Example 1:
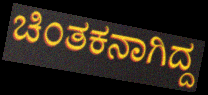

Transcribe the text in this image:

ಚಿಂತಕನಾಗಿದ್ದ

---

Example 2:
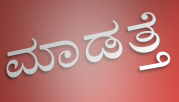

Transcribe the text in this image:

ಮಾಡತ್ತೆ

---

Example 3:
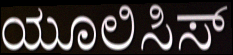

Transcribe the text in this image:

ಯೂಲಿಸಿಸ್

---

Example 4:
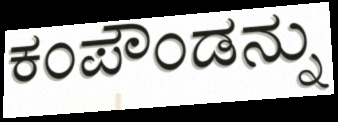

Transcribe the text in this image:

ಕಂಪೌಂಡನ್ನು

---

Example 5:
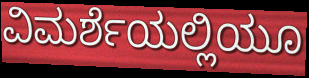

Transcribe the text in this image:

ವಿಮರ್ಶೆಯಲ್ಲಿಯೂ